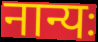
नान्यः